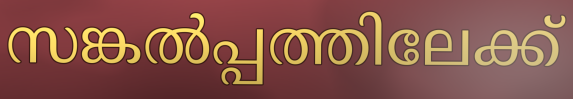
സങ്കൽപ്പത്തിലേക്ക്